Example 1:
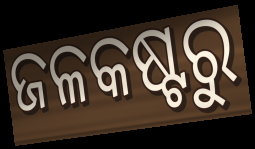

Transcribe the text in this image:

ଜଳକଷ୍ଟରୁ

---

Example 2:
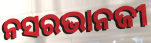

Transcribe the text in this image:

ନସରଭାନଜୀ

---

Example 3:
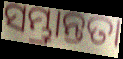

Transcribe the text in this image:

ସମ୍ଭ୍ରାନ୍ତତା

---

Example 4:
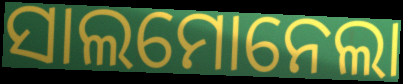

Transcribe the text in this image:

ସାଲମୋନେଲା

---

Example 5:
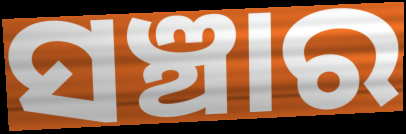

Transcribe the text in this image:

ସଞ୍ଚାର